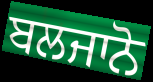
ਬਲਜਾਨੋ